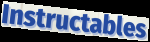
Instructables